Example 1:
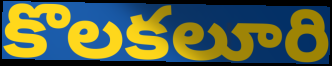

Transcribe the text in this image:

కొలకలూరి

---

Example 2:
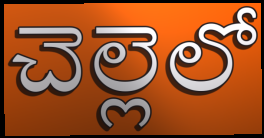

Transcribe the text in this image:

చెల్లెలో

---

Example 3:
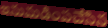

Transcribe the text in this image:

ఇనుమడింపచేసిన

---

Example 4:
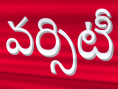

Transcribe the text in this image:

వర్సిటీ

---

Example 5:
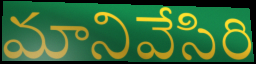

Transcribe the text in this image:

మానివేసిరి